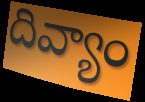
దివ్యాం